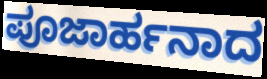
ಪೂಜಾರ್ಹನಾದ